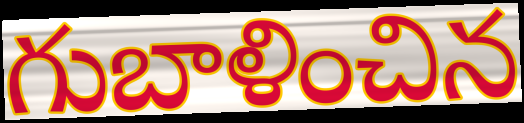
గుబాళించిన